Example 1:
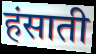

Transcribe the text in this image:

हंसाती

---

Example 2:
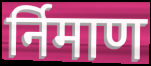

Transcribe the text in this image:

र्निमाण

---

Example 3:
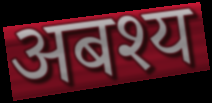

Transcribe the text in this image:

अबश्य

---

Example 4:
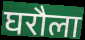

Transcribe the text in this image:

घरौला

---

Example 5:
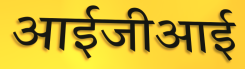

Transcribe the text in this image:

आईजीआई